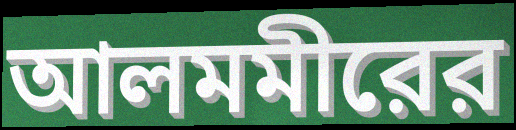
আলমমীরের